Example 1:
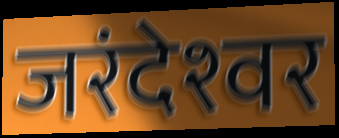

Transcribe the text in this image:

जरंदेश्वर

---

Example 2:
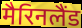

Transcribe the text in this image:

मैरिनलैंड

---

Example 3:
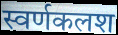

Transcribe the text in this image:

स्वर्णकलश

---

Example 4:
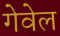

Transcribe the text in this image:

गेवेल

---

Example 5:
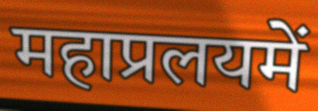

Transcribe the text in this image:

महाप्रलयमें